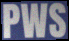
PWS